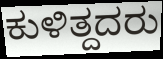
ಕುಳಿತ್ದದರು